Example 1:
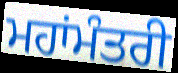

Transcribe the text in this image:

ਮਹਾਂਮੰਤਰੀ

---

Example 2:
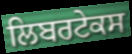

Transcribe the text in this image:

ਲਿਬਰਟੇਕਸ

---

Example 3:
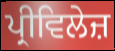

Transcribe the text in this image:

ਪ੍ਰੀਵਿਲੇਜ਼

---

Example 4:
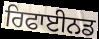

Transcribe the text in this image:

ਰਿਫਾਈਨਡ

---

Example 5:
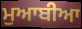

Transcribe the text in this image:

ਮੁਆਬੀਆ